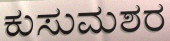
ಕುಸುಮಶರ